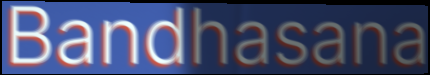
Bandhasana